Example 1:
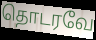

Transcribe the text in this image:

தொடரவே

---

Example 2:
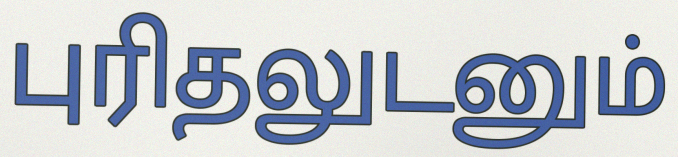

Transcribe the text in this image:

புரிதலுடனும்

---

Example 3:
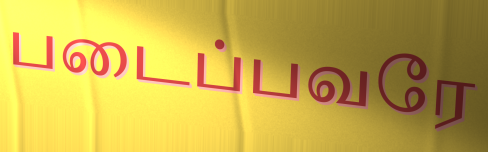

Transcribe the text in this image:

படைப்பவரே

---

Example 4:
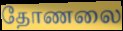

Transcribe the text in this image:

தோணலை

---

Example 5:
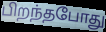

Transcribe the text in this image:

பிறந்தபோது